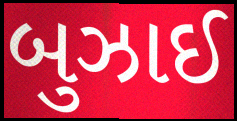
બુઝાઈ